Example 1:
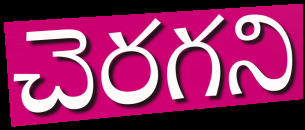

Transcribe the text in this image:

చెరగని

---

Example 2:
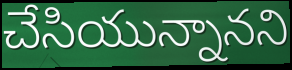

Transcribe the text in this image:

చేసియున్నానని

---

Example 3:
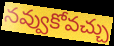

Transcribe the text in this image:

నవ్వుకోవచ్చు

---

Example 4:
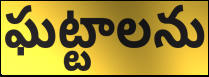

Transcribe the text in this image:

ఘట్టాలను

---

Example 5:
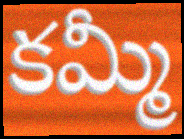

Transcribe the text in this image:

కమ్మీ